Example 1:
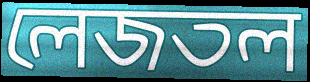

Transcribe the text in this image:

লেজতল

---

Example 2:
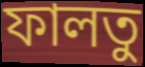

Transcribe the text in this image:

ফালতু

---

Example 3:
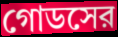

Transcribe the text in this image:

গোডসের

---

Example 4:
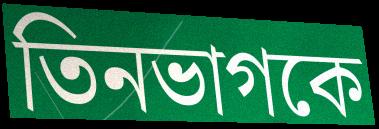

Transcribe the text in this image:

তিনভাগকে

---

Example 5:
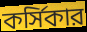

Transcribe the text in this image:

কর্সিকার